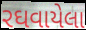
રઘવાયેલા